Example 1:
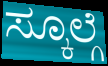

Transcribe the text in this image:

ಸ್ಕೂಲ್ಗೆ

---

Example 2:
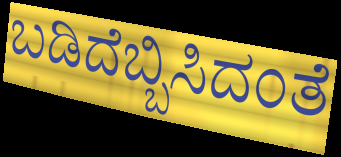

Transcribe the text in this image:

ಬಡಿದೆಬ್ಬಿಸಿದಂತೆ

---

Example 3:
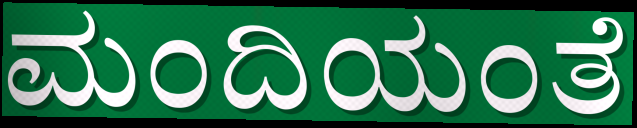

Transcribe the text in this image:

ಮಂದಿಯಂತೆ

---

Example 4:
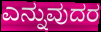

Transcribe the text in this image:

ಎನ್ನುವುದರ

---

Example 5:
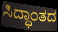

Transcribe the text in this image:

ಸಿದ್ಧಾಂತದ